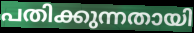
പതിക്കുന്നതായി